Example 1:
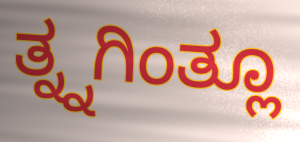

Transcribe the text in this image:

ತ್ನ್ನಗಿಂತ್ಲೂ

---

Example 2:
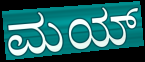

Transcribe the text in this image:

ಮಯ್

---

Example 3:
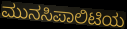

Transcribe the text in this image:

ಮುನಸಿಪಾಲಿಟಿಯ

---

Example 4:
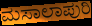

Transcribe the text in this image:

ಮಸಾಲಾಪುರಿ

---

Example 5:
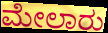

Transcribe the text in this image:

ಮೇಲಾರು